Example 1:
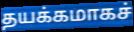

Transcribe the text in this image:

தயக்கமாகச்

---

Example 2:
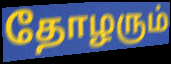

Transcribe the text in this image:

தோழரும்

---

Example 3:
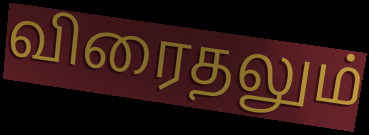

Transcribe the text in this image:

விரைதலும்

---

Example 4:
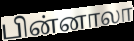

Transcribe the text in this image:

பின்னாலா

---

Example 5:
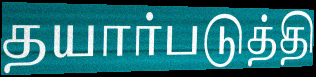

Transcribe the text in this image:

தயார்படுத்தி